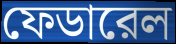
ফেডারেল